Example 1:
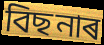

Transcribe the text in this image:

বিছনাৰ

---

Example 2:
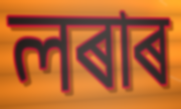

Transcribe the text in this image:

লৰাৰ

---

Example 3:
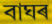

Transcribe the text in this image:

বাঘৰ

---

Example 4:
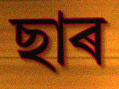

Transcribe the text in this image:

ছাৰ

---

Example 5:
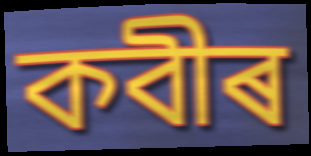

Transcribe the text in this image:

কবীৰ